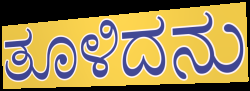
ತೂಳಿದನು